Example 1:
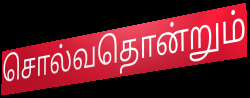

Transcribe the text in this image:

சொல்வதொன்றும்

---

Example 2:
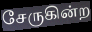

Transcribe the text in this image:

சேருகின்ற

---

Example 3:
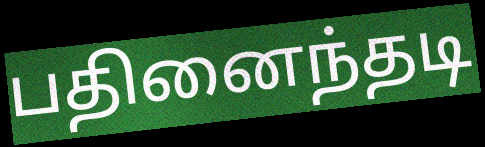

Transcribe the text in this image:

பதினைந்தடி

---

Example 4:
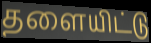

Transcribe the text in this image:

தளையிட்டு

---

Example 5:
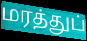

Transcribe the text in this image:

மரத்துப்